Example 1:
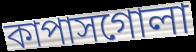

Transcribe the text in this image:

কাপাসগোলা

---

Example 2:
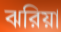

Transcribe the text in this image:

ঝরিয়া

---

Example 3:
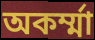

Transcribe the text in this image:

অকর্ম্মা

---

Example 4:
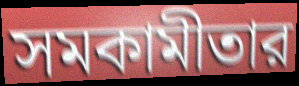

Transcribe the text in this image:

সমকামীতার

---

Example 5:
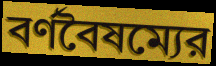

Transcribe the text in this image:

বর্ণবৈষম্যের